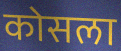
कोसला